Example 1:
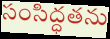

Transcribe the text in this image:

సంసిద్ధతను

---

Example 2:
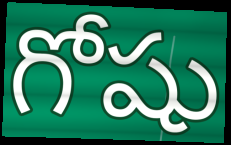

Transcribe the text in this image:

గోషు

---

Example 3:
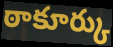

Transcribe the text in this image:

ఠాకూర్కు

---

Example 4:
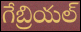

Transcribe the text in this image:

గేబ్రియల్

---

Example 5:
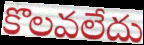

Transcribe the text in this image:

కొలవలేదు